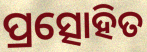
ପ୍ରତ୍ସୋହିତ